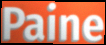
Paine